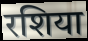
रशिया